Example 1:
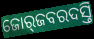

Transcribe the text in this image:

ଜୋର୍‍ଜବରଦସ୍ତି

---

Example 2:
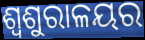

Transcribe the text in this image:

ଶ୍ୱଶୁରାଳୟର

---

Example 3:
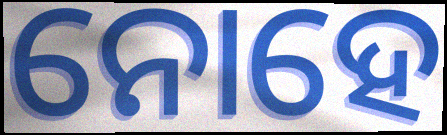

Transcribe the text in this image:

ନୋହେ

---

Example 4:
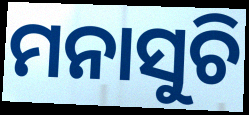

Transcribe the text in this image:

ମନାସୁଚି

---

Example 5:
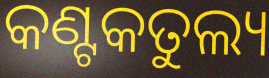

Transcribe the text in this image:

କଣ୍ଟକତୁଲ୍ୟ